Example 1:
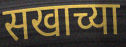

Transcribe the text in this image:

सखाच्या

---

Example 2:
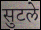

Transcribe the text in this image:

सुटले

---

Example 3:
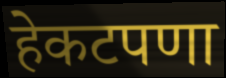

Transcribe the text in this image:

हेकटपणा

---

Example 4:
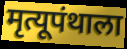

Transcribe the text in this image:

मृत्यूपंथाला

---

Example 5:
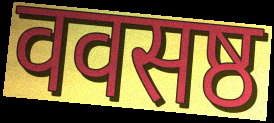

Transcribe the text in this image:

ववसष्ठ